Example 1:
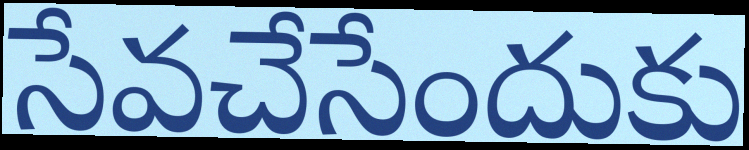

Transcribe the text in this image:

సేవచేసేందుకు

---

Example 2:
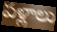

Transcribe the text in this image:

పళ్లాలు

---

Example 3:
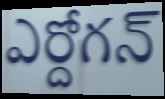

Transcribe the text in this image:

ఎర్దోగన్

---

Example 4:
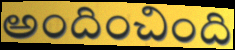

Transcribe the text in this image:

అందించింది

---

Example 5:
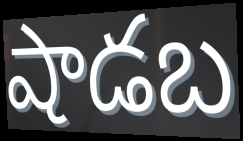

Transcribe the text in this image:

షాడబ